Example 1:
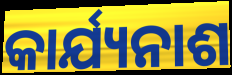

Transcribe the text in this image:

କାର୍ଯ୍ୟନାଶ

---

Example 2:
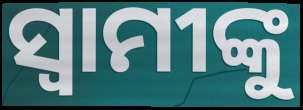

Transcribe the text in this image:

ସ୍ବାମୀଙ୍କୁ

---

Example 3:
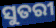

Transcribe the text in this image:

ସୁତରୀ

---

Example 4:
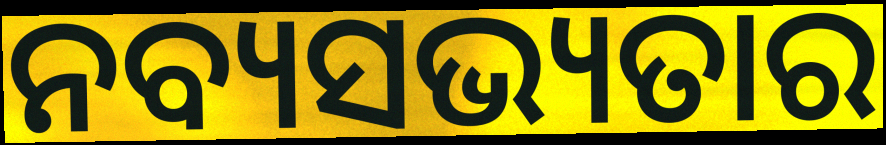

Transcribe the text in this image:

ନବ୍ୟସଭ୍ୟତାର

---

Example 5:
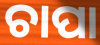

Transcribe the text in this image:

ଚାପା